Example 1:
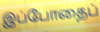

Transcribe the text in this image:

இப்போதைப்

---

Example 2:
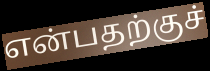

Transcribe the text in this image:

என்பதற்குச்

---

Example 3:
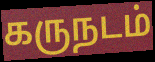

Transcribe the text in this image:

கருநடம்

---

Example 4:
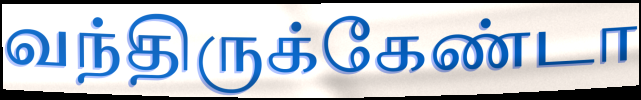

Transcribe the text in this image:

வந்திருக்கேண்டா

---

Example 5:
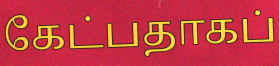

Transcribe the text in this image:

கேட்பதாகப்